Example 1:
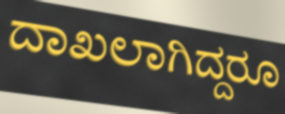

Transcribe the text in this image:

ದಾಖಲಾಗಿದ್ದರೂ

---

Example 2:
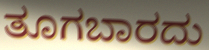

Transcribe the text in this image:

ತೂಗಬಾರದು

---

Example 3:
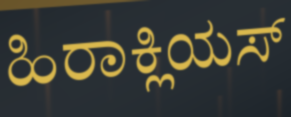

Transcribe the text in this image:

ಹಿರಾಕ್ಲಿಯಸ್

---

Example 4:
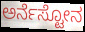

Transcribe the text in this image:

ಅರ್ನೆಸ್ಟೋನ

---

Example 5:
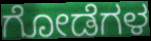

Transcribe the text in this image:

ಗೋಡೆಗಳ